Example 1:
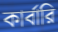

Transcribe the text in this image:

কার্বারি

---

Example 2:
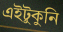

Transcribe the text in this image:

এইটুকুনি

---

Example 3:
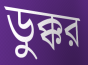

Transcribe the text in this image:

ডুক্কর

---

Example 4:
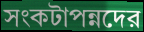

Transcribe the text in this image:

সংকটাপন্নদের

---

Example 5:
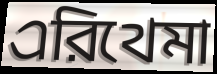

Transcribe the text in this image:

এরিথেমা